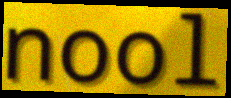
nool